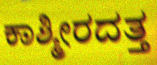
ಕಾಶ್ಮೀರದತ್ತ